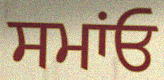
ਸਮਾਂਓ